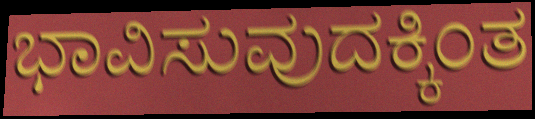
ಭಾವಿಸುವುದಕ್ಕಿಂತ